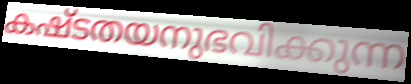
കഷ്ടതയനുഭവിക്കുന്ന